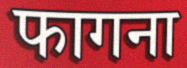
फागना